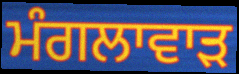
ਮੰਗਲਾਵਾੜ